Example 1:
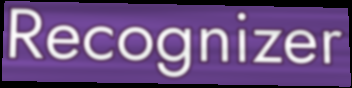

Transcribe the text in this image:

Recognizer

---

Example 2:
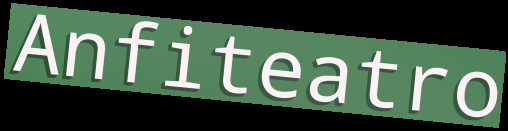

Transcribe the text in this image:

Anfiteatro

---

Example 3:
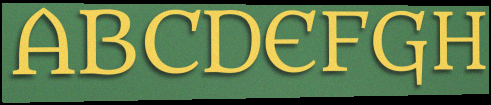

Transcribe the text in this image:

ABCDEFGH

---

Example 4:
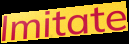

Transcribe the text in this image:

Imitate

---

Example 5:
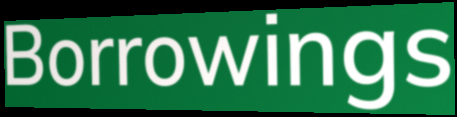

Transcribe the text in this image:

Borrowings